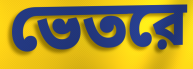
ভেতরে